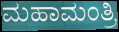
ಮಹಾಮಂತ್ರಿ